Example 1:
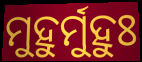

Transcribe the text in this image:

ମୁହୁର୍ମୁହୁଃ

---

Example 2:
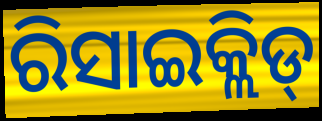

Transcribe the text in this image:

ରିସାଇକ୍ଲିଡ୍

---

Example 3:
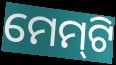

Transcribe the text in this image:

ମେମ୍‍ଟି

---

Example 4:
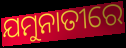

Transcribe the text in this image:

ଯମୁନାତୀରେ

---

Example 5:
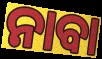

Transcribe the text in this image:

ନାବା